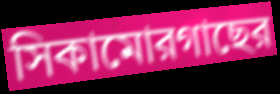
সিকামোরগাছের